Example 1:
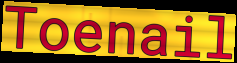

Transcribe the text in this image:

Toenail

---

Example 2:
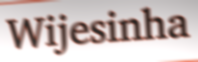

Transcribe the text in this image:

Wijesinha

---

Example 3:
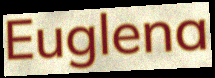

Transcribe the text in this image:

Euglena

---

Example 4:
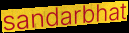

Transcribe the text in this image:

sandarbhat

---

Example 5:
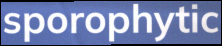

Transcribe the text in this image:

sporophytic